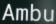
Ambu